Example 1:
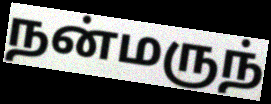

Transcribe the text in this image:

நன்மருந்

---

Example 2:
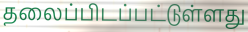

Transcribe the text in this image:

தலைப்பிடப்பட்டுள்ளது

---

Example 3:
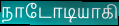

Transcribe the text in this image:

நாடோடியாகி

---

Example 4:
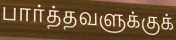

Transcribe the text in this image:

பார்த்தவளுக்குக்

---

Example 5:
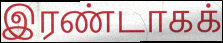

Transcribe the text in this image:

இரண்டாகக்